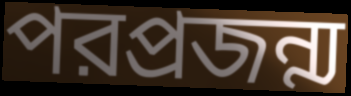
পরপ্রজন্ম